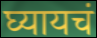
घ्यायचं